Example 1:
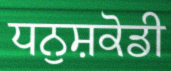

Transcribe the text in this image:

ਧਨੁਸ਼ਕੋਡੀ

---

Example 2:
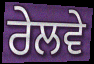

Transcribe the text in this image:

ਰੇਲਵੇ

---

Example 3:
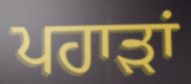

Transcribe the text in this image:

ਪਹਾੜਾਂ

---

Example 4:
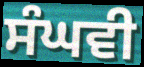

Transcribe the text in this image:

ਸੰਘਵੀ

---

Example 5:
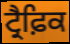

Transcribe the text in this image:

ਟ੍ਰੈਫ਼ਿਕ